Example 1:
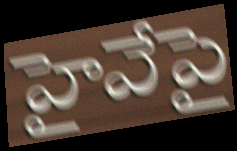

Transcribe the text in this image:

హైవేపై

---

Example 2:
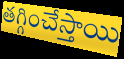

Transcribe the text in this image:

తగ్గించేస్తాయి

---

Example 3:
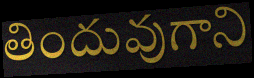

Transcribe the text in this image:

తిందువుగాని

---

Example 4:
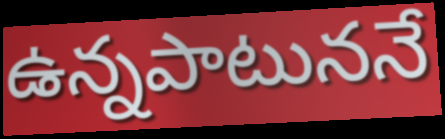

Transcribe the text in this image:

ఉన్నపాటుననే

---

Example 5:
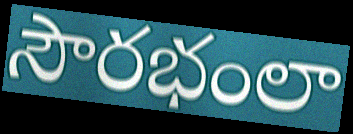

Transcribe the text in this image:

సౌరభంలా